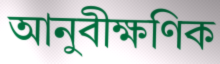
আনুবীক্ষণিক